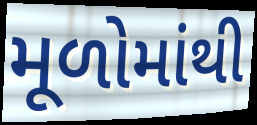
મૂળોમાંથી